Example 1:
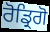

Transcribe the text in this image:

ਰੋਡ੍ਰਿਗੋ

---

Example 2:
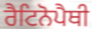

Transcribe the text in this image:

ਰੈਟਿਨੋਪੈਥੀ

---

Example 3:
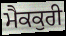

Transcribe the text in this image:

ਮੈਕਕੁਰੀ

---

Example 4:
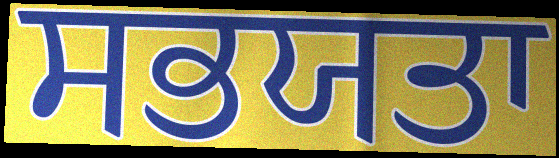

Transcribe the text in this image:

ਸਭਯਤਾ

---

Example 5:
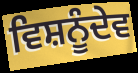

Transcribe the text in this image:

ਵਿਸ਼ਨੂੰਦੇਵ